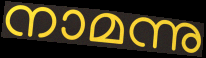
നാമന്നു